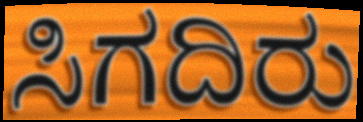
ಸಿಗದಿರು